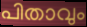
പിതാവും